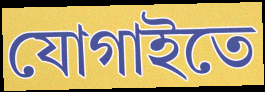
যোগাইতে